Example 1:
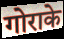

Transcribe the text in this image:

गोराके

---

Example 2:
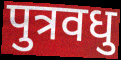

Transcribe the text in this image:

पुत्रवधु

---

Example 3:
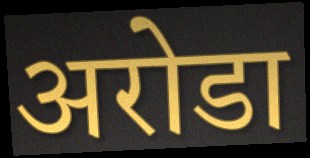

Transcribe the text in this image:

अरोडा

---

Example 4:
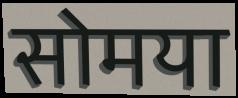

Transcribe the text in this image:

सोमया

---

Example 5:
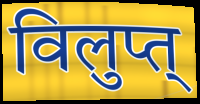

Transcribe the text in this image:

विलुप्त्